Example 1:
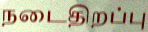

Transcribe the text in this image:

நடைதிறப்பு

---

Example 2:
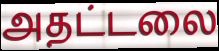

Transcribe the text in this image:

அதட்டலை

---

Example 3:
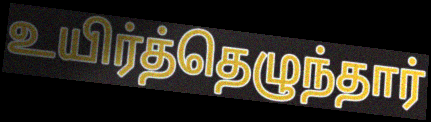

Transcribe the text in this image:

உயிர்த்தெழுந்தார்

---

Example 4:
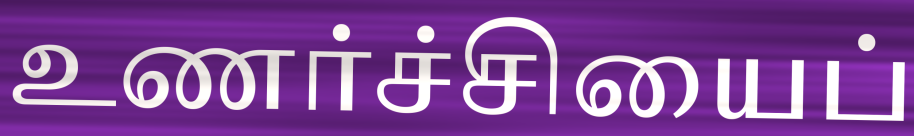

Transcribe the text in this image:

உணர்ச்சியைப்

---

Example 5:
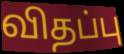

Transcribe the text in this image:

விதப்பு